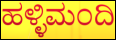
ಹಳ್ಳಿಮಂದಿ